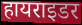
हायराइडर